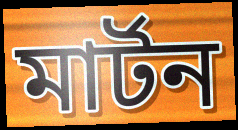
মার্টন